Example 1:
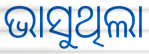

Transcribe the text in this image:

ଭାସୁଥିଲା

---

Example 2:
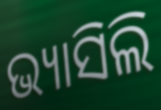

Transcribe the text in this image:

ଭ୍ୟାସିଲି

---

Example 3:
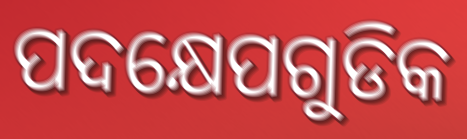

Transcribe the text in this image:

ପଦକ୍ଷେପଗୁଡିକ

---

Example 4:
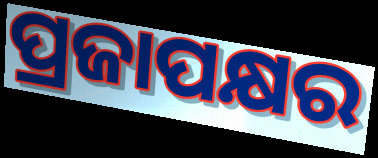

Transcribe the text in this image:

ପ୍ରଜାପକ୍ଷର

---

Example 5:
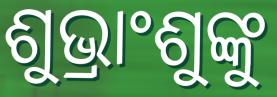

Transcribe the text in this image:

ଶୁଭ୍ରାଂଶୁଙ୍କୁ